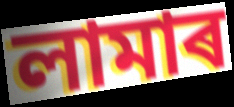
লামাৰ